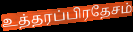
உத்தரப்பிரதேசம்